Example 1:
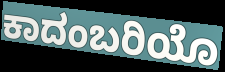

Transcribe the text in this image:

ಕಾದಂಬರಿಯೊ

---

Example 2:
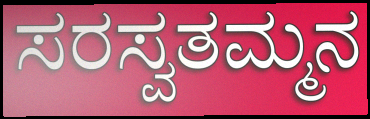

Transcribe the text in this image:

ಸರಸ್ವತಮ್ಮನ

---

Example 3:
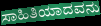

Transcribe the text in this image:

ಸಾಹಿತಿಯಾದವನು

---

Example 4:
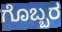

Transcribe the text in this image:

ಗೊಬ್ಬರ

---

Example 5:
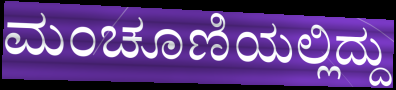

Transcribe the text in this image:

ಮಂಚೂಣಿಯಲ್ಲಿದ್ದು